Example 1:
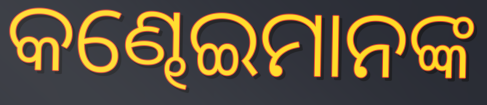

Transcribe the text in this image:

କଣ୍ଢେଇମାନଙ୍କ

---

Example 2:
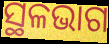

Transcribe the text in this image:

ସ୍ଥଳଭାଗ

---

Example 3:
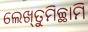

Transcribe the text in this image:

ଲେଖ୍‌ତୁମିଚ୍ଛାମି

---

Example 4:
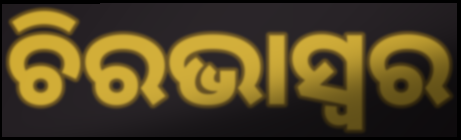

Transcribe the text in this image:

ଚିରଭାସ୍ଵର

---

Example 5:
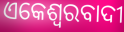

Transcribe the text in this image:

ଏକେଶ୍ଵରବାଦୀ